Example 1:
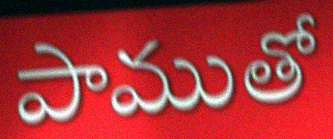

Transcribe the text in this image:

పాముతో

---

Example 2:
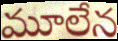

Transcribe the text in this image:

మూలేన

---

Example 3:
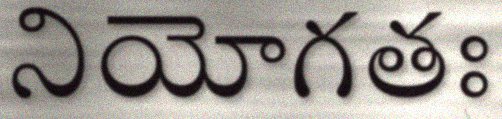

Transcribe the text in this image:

నియోగతః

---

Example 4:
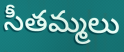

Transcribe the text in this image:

సీతమ్మలు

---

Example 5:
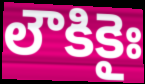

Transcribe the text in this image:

లౌకికైః